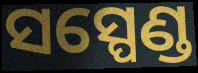
ସସ୍ପେଣ୍ଡ